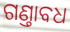
ଗଣ୍ତାବଧ